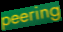
peering